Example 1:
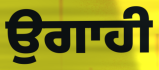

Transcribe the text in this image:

ਉਗਾਹੀ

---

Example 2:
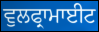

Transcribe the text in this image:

ਵੁਲਫ੍ਰਾਮਾਈਟ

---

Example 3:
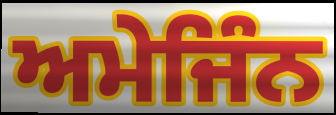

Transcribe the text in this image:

ਅਮੇਜਿੰਨ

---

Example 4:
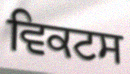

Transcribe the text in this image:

ਵਿਕਟਸ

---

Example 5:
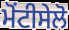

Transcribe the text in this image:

ਮੋਂਟੀਸੇਲੋ